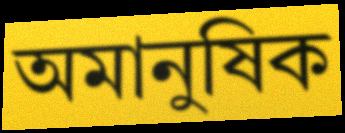
অমানুষিক